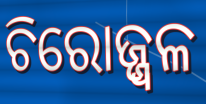
ଚିରୋଜ୍ଜ୍ଵଳ